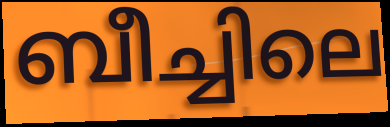
ബീച്ചിലെ